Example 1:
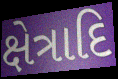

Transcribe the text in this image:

ક્ષેત્રાદિ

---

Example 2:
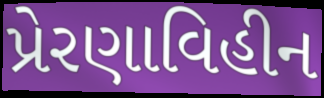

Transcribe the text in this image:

પ્રેરણાવિહીન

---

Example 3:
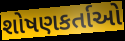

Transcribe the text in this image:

શોષણકર્તાઓ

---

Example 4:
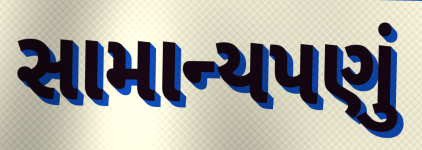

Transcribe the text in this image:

સામાન્યપણું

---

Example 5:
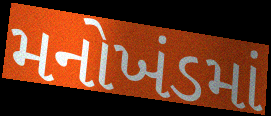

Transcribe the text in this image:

મનોખંડમાં